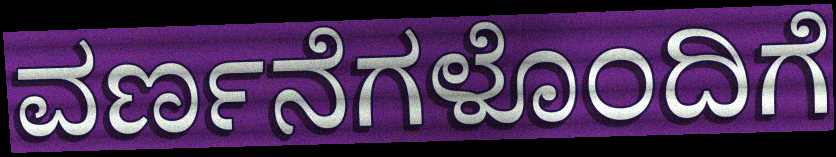
ವರ್ಣನೆಗಳೊಂದಿಗೆ